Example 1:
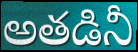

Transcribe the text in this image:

అతడినీ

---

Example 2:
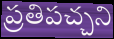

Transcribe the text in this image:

ప్రతిపచ్చని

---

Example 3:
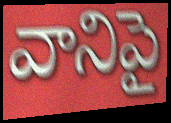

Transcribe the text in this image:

వానిపై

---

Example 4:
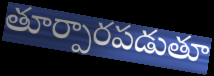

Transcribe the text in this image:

తూర్పారపడుతూ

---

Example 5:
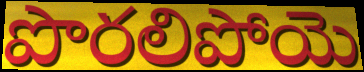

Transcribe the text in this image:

పొరలిపోయె